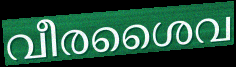
വീരശൈവ